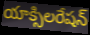
యాక్సిలరేషన్